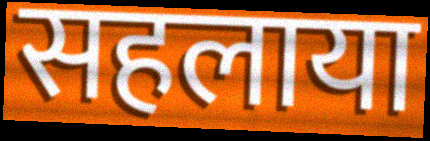
सहलाया